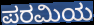
ಪರಮಿಯ